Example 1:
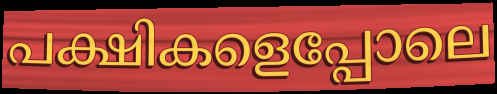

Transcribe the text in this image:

പക്ഷികളെപ്പോലെ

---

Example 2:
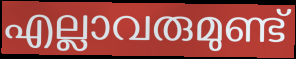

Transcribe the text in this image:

എല്ലാവരുമുണ്ട്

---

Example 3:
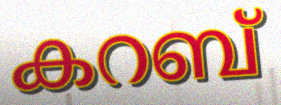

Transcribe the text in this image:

കറബ്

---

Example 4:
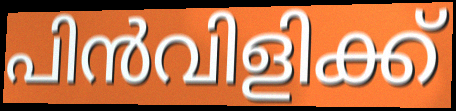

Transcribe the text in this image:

പിൻവിളിക്ക്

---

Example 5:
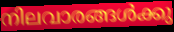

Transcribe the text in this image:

നിലവാരങ്ങൾക്കു